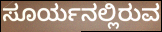
ಸೂರ್ಯನಲ್ಲಿರುವ